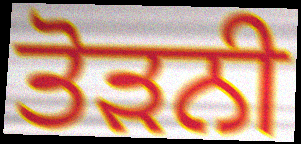
ਤੋੜਨੀ